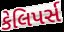
કેલિપર્સ